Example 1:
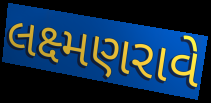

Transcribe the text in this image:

લક્ષ્મણરાવે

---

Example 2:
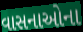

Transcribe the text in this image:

વાસનાઓના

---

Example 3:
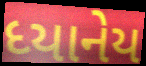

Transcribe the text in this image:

ધ્યાનેય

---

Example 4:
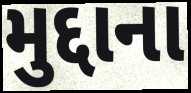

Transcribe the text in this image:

મુદ્દાના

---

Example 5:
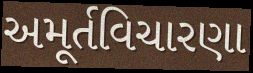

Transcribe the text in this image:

અમૂર્તવિચારણા